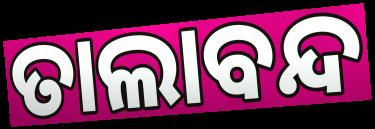
ତାଲାବନ୍ଦ